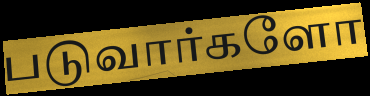
படுவார்களோ